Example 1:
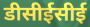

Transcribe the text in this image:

डीसीईसीई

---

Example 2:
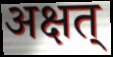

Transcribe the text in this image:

अक्षत्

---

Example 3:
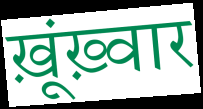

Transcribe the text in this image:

ख़ूंख़्वार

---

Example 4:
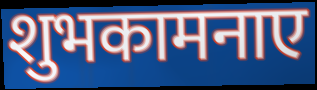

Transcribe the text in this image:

शुभकामनाए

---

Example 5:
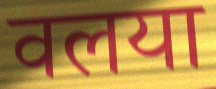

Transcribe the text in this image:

वलया